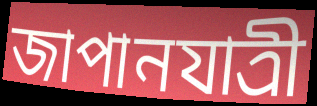
জাপানযাত্রী